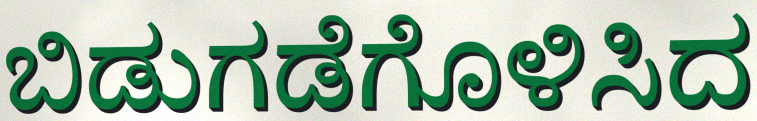
ಬಿಡುಗಡೆಗೊಳಿಸಿದ